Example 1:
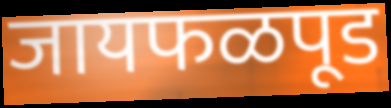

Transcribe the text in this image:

जायफळपूड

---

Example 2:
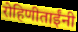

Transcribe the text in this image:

रोहिणीताईंनी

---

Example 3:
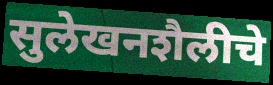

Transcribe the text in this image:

सुलेखनशैलीचे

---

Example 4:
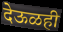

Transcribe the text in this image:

देऊळही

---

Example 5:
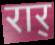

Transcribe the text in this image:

रार्